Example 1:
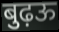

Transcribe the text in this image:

बुढ़ऊ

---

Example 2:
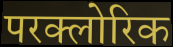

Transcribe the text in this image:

परक्लोरिक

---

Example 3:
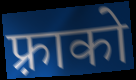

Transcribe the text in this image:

फ़्राको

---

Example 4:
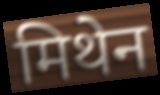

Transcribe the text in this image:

मिथेन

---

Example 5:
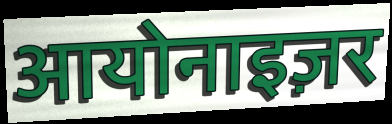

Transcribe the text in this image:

आयोनाइज़र